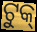
ଟୁକ୍